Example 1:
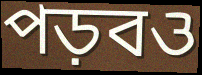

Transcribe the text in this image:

পড়বও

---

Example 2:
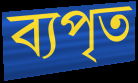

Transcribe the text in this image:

ব্যপৃত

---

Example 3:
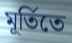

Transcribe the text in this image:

মূর্তিতে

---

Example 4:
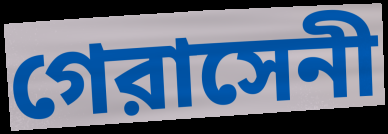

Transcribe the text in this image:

গেরাসেনী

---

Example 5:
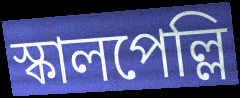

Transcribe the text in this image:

স্কালপেল্লি